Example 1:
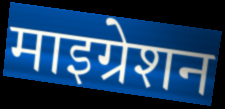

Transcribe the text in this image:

माइग्रेशन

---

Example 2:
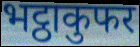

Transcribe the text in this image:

भट्ठाकुफर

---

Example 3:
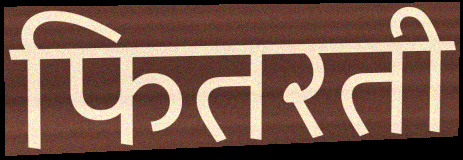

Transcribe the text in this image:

फितरती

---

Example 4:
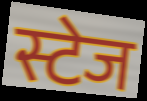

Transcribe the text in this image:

स्‍टेज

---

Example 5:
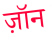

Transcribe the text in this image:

ज़ॉन